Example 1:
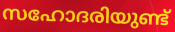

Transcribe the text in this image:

സഹോദരിയുണ്ട്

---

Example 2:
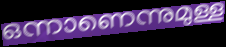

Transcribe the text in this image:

ഒന്നാണെന്നുമുള്ള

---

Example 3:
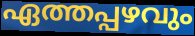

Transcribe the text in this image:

ഏത്തപ്പഴവും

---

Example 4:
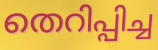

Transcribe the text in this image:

തെറിപ്പിച്ച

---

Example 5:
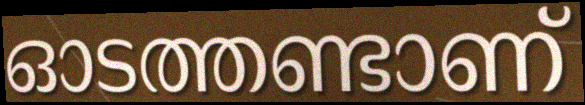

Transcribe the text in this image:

ഓടത്തണ്ടാണ്